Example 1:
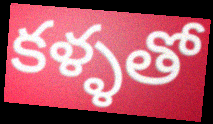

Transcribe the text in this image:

కళ్ళతో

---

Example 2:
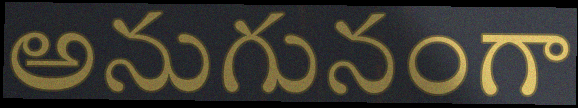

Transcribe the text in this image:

అనుగునంగా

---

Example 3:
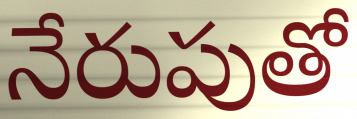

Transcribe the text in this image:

నేరుపుతో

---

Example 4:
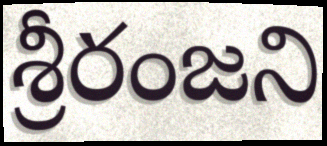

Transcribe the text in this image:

శ్రీరంజని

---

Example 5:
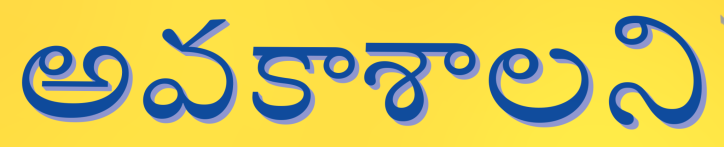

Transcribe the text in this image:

అవకాశాలని